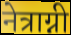
नेत्राग्नी